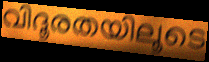
വിദൂരതയിലൂടെ